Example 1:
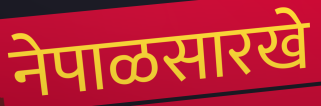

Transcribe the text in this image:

नेपाळसारखे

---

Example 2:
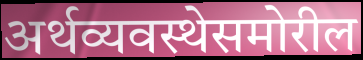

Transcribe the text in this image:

अर्थव्यवस्थेसमोरील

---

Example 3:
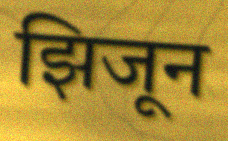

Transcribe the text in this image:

झिजून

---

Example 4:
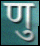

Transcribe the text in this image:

णु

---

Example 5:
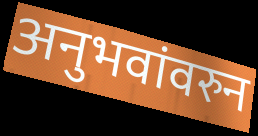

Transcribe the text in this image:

अनुभवांवरुन